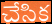
చేసిక